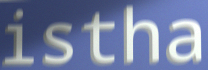
istha